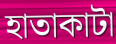
হাতাকাটা